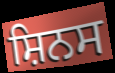
ਸ਼ਿਨਸ